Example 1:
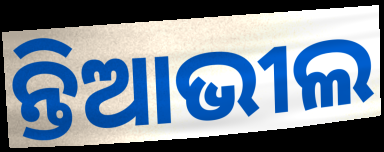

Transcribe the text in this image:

ନ୍ତିଆଭୀଲ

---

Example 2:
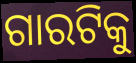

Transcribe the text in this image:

ଗାରଟିକୁ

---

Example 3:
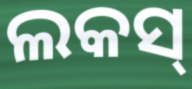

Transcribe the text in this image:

ଲକସ୍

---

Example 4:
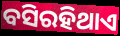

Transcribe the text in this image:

ବସିରହିଥାଏ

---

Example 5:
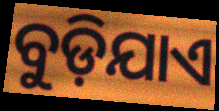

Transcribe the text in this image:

ବୁଡ଼ିଯାଏ